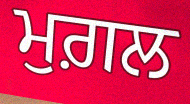
ਮੁਗ਼ਲ